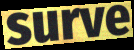
surve